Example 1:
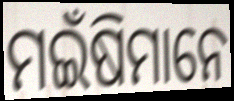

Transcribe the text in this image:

ମଇଁଷିମାନେ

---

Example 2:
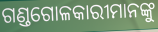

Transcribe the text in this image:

ଗଣ୍ଡଗୋଳକାରୀମାନଙ୍କୁ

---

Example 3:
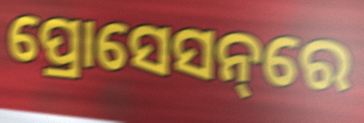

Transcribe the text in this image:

ପ୍ରୋସେସନ୍‌ରେ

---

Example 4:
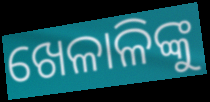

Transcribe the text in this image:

ଖେଳାଳିଙ୍କୁ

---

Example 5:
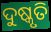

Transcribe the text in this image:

ଦୁଷ୍କୃତି